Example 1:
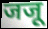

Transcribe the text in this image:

जजू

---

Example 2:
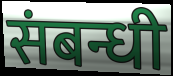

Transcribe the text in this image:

संबन्धी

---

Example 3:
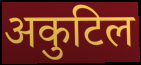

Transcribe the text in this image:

अकुटिल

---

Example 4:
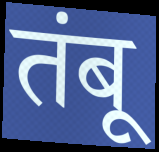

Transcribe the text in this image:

तंबू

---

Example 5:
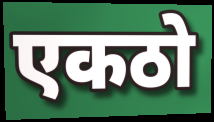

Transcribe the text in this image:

एकठो